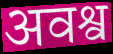
अवश्व